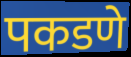
पकडणे